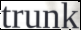
trunk